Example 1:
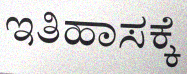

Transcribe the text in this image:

ಇತಿಹಾಸಕ್ಕೆ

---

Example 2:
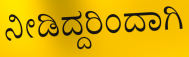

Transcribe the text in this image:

ನೀಡಿದ್ದರಿಂದಾಗಿ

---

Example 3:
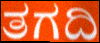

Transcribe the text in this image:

ತಗದಿ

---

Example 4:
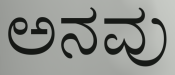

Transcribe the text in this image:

ಅನವು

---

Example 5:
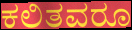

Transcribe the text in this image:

ಕಲಿತವರೂ